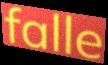
falle